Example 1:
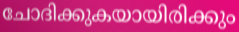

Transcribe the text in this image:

ചോദിക്കുകയായിരിക്കും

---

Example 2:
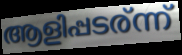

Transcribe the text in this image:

ആളിപ്പടര്ന്ന്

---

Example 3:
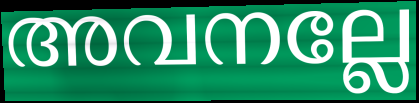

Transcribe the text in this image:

അവനല്ലേ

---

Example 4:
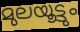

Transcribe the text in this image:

മുലയൂട്ടും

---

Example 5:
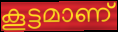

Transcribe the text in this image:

കൂട്ടമാണ്